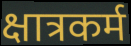
क्षात्रकर्म